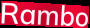
Rambo